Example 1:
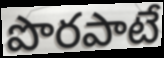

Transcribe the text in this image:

పొరపాటే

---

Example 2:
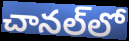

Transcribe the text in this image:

చానల్‌లో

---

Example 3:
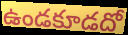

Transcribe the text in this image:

ఉండకూడదో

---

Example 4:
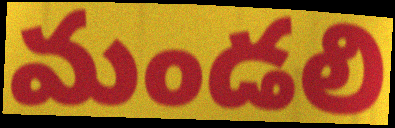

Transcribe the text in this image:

మండలి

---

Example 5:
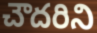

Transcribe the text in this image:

చౌదరిని